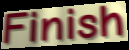
Finish